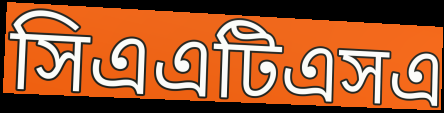
সিএএটিএসএ